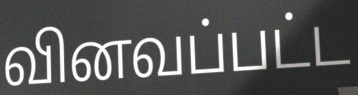
வினவப்பட்ட